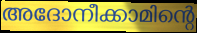
അദോനീക്കാമിന്റെ